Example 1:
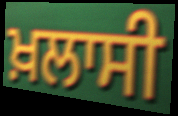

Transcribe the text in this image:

ਖ਼ਲਾਸੀ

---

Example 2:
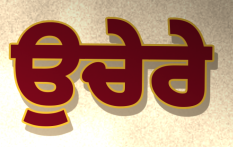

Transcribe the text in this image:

ਉਚੇਰੇ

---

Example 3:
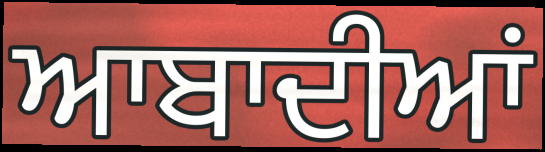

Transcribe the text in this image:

ਆਬਾਦੀਆਂ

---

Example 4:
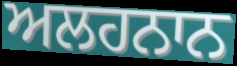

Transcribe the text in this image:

ਅਲਹਨਾਨ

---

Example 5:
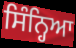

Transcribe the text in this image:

ਸਿੰਨ੍ਹਿਆ